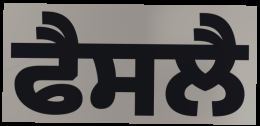
ਫੈਸਲੈ